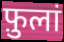
फ़ुलां